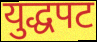
युद्धपट